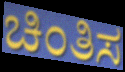
ಚಿಂತಿಸ